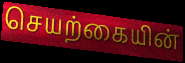
செயற்கையின்